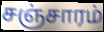
சஞ்சாரம்